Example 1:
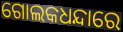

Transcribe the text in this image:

ଗୋଲକଧନ୍ଦାରେ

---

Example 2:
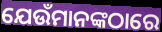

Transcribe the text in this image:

ଯେଉଁମାନଙ୍କଠାରେ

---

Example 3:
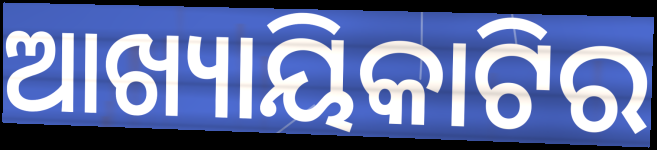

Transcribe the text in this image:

ଆଖ୍ୟାୟିକାଟିର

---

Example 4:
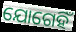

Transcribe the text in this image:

ଯୋଗେହିଁ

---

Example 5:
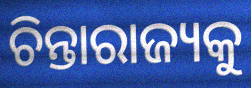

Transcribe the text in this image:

ଚିନ୍ତାରାଜ୍ୟକୁ